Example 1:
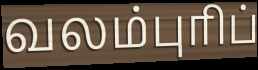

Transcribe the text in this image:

வலம்புரிப்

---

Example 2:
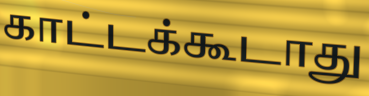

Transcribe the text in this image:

காட்டக்கூடாது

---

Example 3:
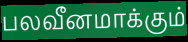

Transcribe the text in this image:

பலவீனமாக்கும்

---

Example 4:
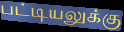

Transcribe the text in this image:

பட்டியலுக்கு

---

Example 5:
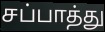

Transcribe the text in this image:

சப்பாத்து